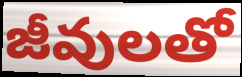
జీవులతో